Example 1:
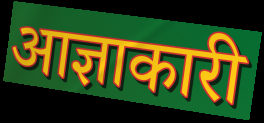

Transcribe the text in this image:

आज्ञाकारी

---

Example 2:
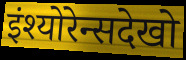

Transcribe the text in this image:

इंश्योरेन्सदेखो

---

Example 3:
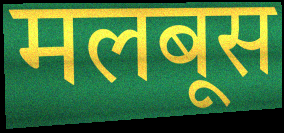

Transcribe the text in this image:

मलबूस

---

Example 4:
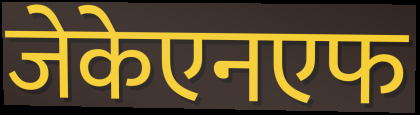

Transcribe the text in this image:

जेकेएनएफ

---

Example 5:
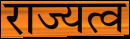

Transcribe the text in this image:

राज्यत्व